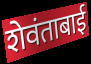
शेवंताबाई